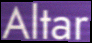
Altar